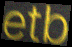
etb